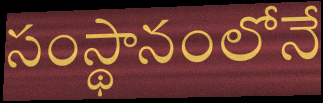
సంస్థానంలోనే